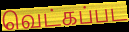
வெட்கப்பட